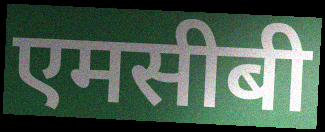
एमसीबी